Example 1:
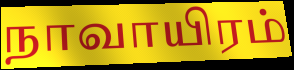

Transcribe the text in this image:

நாவாயிரம்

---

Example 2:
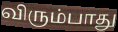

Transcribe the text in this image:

விரும்பாது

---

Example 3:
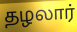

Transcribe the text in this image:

தழலார்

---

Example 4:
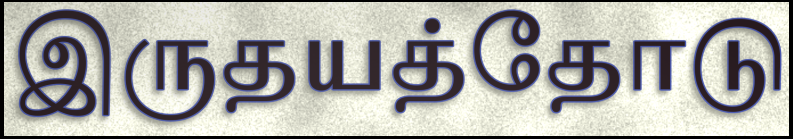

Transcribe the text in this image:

இருதயத்தோடு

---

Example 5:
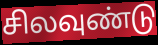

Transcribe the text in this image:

சிலவுண்டு